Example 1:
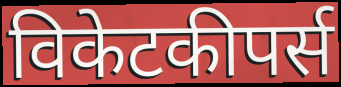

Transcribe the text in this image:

विकेटकीपर्स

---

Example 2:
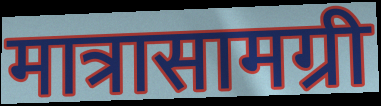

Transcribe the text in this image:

मात्रासामग्री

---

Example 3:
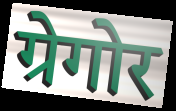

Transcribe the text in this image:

ग्रेगोर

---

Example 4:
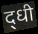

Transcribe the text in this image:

द्धी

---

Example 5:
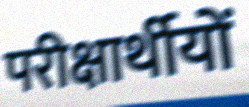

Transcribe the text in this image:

परीक्षार्थीयों